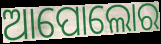
ଆପୋଲୋର